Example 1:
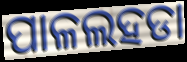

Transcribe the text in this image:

ପାଳଲହଡା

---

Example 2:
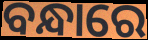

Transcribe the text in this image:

ବନ୍ଧାରେ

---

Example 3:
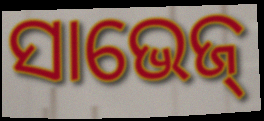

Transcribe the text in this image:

ସାଭେଜ୍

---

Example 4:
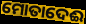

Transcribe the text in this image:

ମୋତାଦେଈ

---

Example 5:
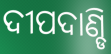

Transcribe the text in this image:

ଦୀପଦାଣ୍ଡି